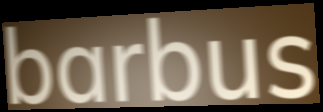
barbus